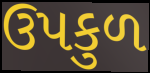
ઉપકુળ